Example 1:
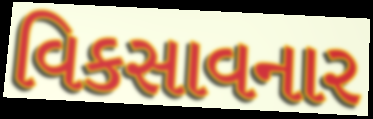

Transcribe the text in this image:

વિકસાવનાર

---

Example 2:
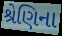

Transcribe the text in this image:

શ્રેણિના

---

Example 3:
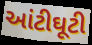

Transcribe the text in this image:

આંટીઘૂટી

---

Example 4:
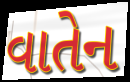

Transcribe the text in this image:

વાતેન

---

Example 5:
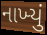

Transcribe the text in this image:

નાખ્‍યું